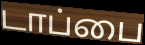
டாப்பை